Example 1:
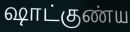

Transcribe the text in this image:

ஷாட்குண்ய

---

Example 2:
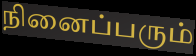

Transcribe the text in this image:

நினைப்பரும்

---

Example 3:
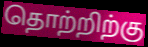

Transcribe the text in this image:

தொற்றிற்கு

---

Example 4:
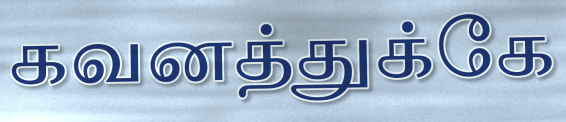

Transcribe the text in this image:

கவனத்துக்கே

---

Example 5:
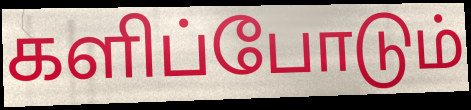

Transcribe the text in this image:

களிப்போடும்